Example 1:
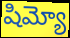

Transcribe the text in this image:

షిమ్యో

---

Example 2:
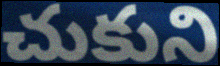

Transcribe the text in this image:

చుకుని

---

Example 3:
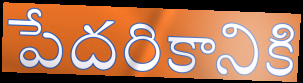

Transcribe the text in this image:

పేదరికానికి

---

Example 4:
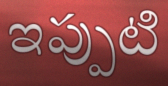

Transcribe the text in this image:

ఇప్పుటి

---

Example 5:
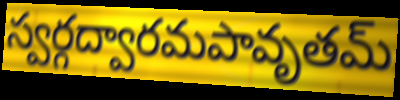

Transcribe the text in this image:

స్వర్గద్వారమపావృతమ్